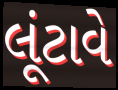
લૂંટાવે